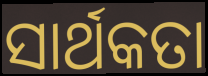
ସାର୍ଥକତା